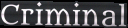
Criminal